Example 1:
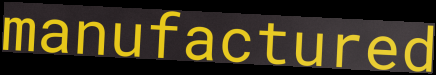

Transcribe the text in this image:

manufactured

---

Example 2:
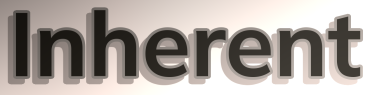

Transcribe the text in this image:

Inherent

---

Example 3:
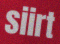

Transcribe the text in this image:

siirt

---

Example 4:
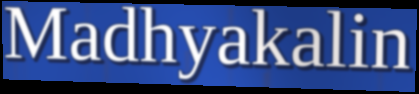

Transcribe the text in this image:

Madhyakalin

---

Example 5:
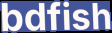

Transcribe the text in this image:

bdfish